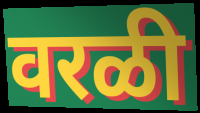
वरळी